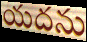
యదను